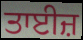
ਤਾਈਜ਼